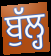
ਬੁੱਲ੍ਹ